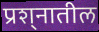
प्रश्नातील